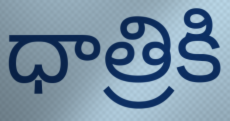
ధాత్రికి